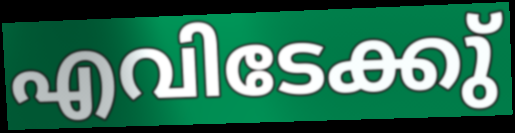
എവിടേക്കു്